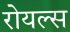
रोयल्स